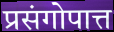
प्रसंगोपात्त